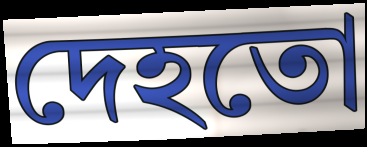
দেহতো